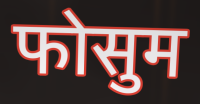
फोसुम